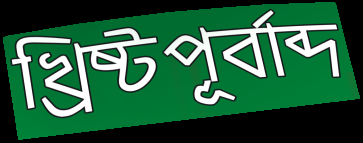
খ্রিষ্টপূর্বাব্দ